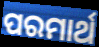
ପରମାର୍ଥ